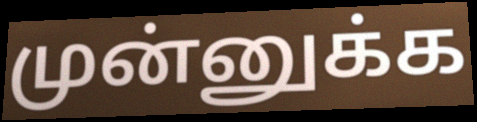
முன்னுக்க